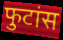
फुटांस